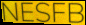
NESFB